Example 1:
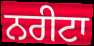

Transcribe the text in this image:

ਨਰੀਟਾ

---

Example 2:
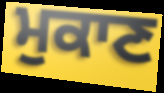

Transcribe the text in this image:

ਮੁਕਾਣ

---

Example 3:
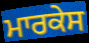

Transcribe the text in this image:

ਮਾਰਕੇਸ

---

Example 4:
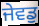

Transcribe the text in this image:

ਜੇਵਡੁ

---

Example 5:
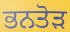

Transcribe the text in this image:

ਭਨਤੋੜ